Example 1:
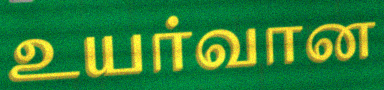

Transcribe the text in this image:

உயர்வான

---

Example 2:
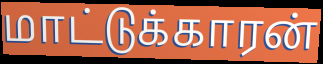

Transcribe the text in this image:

மாட்டுக்காரன்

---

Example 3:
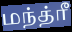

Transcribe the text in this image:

மந்த்ரீ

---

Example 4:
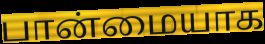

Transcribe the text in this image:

பான்மையாக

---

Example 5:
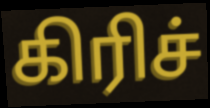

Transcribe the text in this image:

கிரிச்